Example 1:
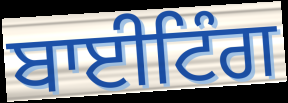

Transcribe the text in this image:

ਬਾਈਟਿੰਗ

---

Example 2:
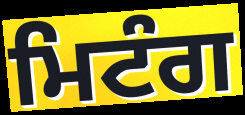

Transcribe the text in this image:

ਮਿਟੰਗ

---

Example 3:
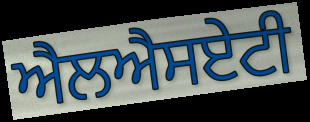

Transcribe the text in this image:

ਐਲਐਸਏਟੀ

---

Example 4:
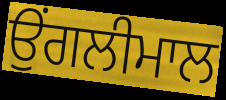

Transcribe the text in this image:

ਉਂਗਲੀਮਾਲ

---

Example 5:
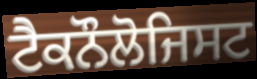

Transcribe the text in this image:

ਟੈਕਨੌਲੋਜਿਸਟ